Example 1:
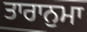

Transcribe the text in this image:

ਤਾਰਾਨੁਮਾ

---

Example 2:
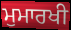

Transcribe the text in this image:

ਮੁਮਾਰਖੀ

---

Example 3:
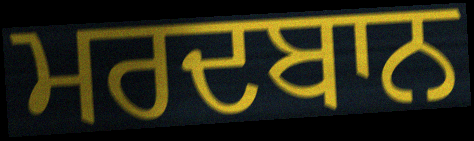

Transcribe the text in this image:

ਮਰਦਬਾਨ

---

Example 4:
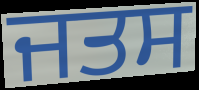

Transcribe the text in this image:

ਜਤਸ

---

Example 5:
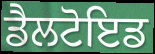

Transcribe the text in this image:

ਡੈਲਟੋਇਡ